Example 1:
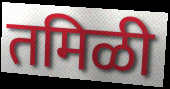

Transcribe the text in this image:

तमिळी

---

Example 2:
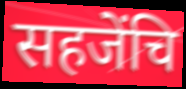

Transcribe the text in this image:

सहजेंचि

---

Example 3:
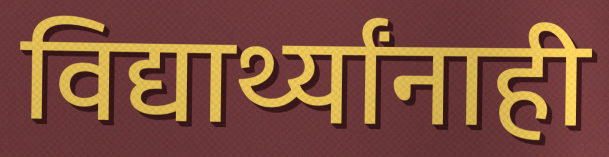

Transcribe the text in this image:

विद्यार्थ्यांनाही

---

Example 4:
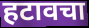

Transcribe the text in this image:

हटावचा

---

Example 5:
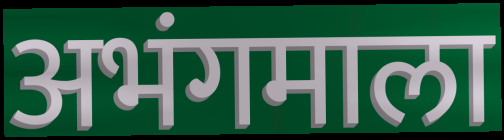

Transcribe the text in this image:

अभंगमाला